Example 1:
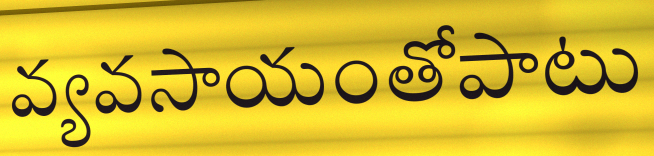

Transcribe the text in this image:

వ్యవసాయంతోపాటు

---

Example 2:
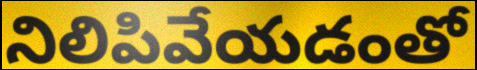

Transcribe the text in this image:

నిలిపివేయడంతో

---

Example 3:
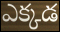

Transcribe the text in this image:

ఎక్కడ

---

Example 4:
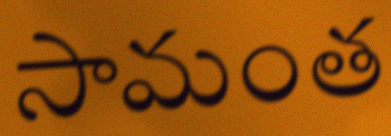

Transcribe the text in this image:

సామంత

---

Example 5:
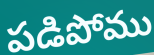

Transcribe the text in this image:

పడిపోము